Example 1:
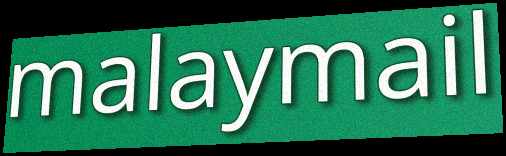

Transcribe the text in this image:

malaymail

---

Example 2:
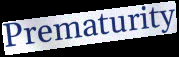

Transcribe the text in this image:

Prematurity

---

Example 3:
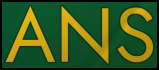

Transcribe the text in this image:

ANS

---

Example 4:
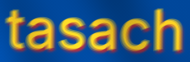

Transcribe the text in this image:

tasach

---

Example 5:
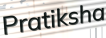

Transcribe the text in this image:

Pratiksha